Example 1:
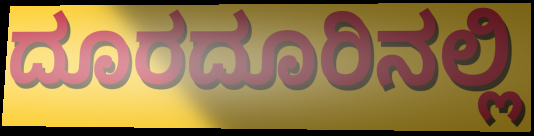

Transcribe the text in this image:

ದೂರದೂರಿನಲ್ಲಿ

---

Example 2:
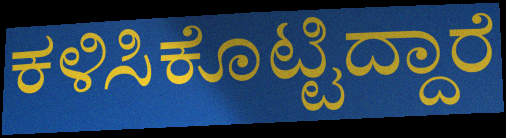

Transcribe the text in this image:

ಕಳಿಸಿಕೊಟ್ಟಿದ್ದಾರೆ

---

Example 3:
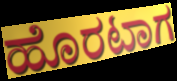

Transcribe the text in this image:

ಹೊರಟಾಗ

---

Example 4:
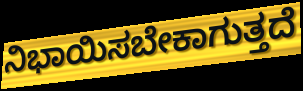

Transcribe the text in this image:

ನಿಭಾಯಿಸಬೇಕಾಗುತ್ತದೆ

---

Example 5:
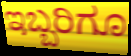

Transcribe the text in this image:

ಇಬ್ಬರಿಗೂ